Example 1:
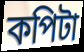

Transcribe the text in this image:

কপিটা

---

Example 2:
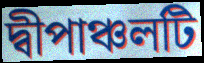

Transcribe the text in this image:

দ্বীপাঞ্চলটি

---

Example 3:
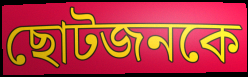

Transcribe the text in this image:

ছোটজনকে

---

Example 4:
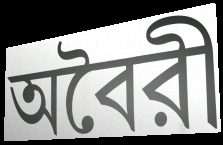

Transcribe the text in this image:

অবৈরী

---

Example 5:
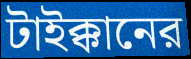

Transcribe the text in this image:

টাইক্কানের